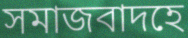
সমাজবাদহে